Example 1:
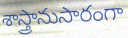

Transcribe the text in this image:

శాస్త్రానుసారంగా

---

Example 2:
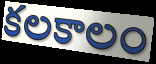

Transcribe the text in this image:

కలకాలం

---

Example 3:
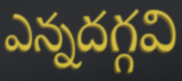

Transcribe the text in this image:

ఎన్నదగ్గవి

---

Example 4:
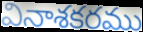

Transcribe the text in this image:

వినాశకరము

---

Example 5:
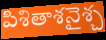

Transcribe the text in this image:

పిశితాశనైశ్చ